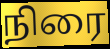
நிரை